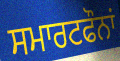
ਸਮਾਰਟਫੌਨਾਂ